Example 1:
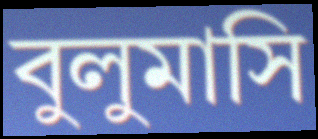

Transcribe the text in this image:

বুলুমাসি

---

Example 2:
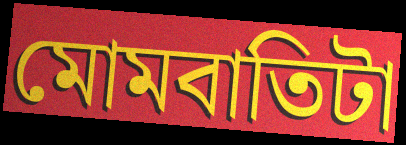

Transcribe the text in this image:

মোমবাতিটা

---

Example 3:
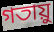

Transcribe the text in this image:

গতায়ু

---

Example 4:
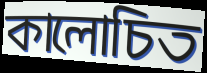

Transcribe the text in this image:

কালোচিত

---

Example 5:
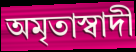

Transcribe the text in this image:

অমৃতাস্বাদী